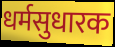
धर्मसुधारक